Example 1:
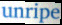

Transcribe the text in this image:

unripe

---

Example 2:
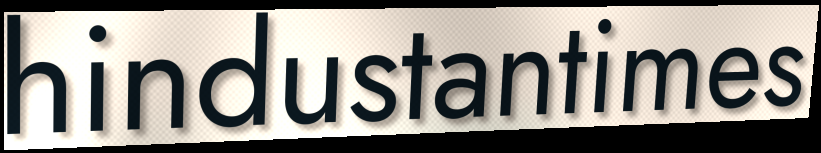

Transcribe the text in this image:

hindustantimes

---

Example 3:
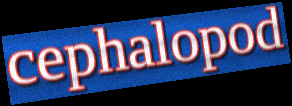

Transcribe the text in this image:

cephalopod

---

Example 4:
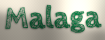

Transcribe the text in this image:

Malaga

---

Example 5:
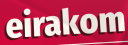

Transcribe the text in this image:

eirakom